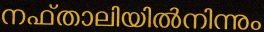
നഫ്താലിയിൽനിന്നും